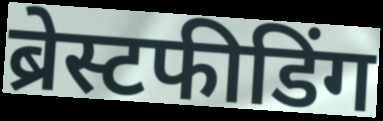
ब्रेस्टफीडिंग